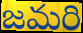
జమరి